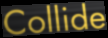
Collide